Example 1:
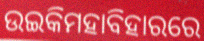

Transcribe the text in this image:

ଉଇକିମହାବିହାରରେ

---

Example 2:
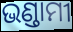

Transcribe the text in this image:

ଭଣ୍ଡାମୀ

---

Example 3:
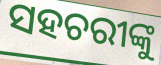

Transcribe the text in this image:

ସହଚରୀଙ୍କୁ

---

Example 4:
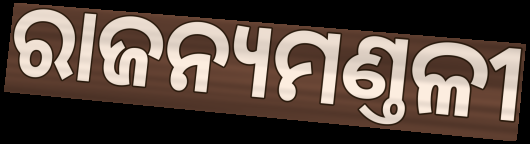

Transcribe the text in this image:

ରାଜନ୍ୟମଣ୍ତଳୀ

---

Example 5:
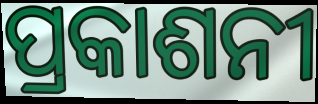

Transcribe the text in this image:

ପ୍ରକାଶନୀ